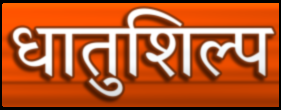
धातुशिल्प